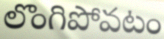
లొంగిపోవటం